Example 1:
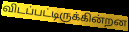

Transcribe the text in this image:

விடப்பட்டிருக்கின்றன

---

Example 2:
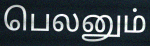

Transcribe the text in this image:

பெலனும்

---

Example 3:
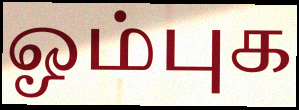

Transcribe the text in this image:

ஓம்புக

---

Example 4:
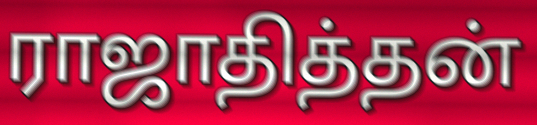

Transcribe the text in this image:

ராஜாதித்தன்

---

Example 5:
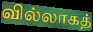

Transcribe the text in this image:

வில்லாகத்